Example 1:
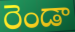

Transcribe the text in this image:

రెండా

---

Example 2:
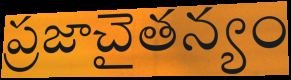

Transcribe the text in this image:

ప్రజాచైతన్యం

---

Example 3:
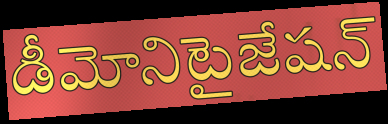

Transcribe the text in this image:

డీమోనిటైజేషన్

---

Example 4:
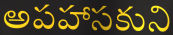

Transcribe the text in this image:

అపహాసకుని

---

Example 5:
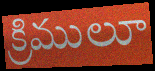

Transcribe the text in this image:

క్రిములూ